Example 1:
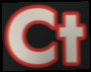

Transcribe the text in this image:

Ct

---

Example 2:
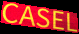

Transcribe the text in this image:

CASEL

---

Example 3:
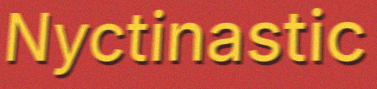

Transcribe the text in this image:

Nyctinastic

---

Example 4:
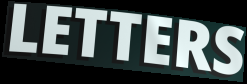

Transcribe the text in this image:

LETTERS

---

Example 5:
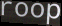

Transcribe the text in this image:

roop